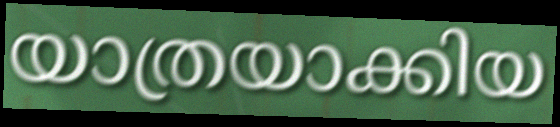
യാത്രയാക്കിയ